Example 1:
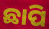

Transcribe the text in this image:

ଛାପି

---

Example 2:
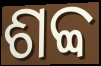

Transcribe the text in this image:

ଶବ୍ବ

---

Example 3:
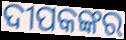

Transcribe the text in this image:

ଦୀପକଙ୍କର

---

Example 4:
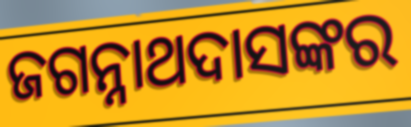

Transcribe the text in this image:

ଜଗନ୍ନାଥଦାସଙ୍କର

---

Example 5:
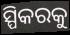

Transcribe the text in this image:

ସ୍ପିକରକୁ